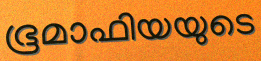
ഭൂമാഫിയയുടെ